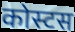
कोस्टस